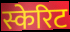
स्केरिट